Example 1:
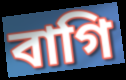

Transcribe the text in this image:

বাগি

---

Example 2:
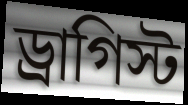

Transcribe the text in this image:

ড্রাগিস্ট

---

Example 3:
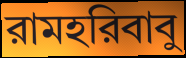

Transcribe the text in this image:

রামহরিবাবু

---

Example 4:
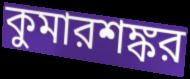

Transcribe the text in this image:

কুমারশঙ্কর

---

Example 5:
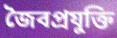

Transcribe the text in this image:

জৈবপ্রযুক্তি